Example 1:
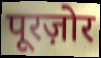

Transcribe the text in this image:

पूरज़ोर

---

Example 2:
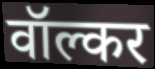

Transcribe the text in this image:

वॉल्कर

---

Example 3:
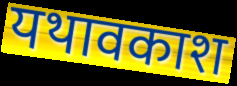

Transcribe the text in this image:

यथावकाश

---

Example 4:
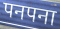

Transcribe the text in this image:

पनपना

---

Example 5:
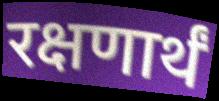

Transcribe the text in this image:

रक्षणार्थं